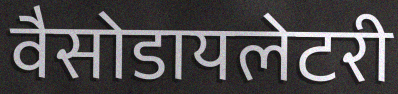
वैसोडायलेटरी